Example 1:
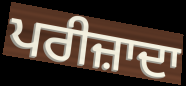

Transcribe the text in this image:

ਪਰੀਜ਼ਾਦਾ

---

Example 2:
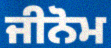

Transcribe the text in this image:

ਜੀਨੋਮ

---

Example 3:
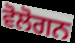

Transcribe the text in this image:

ਵੋਲੋਗਨ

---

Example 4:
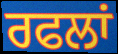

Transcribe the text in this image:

ਰਫਲਾਂ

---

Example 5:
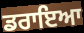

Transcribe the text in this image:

ਡਰਾਇਆ